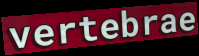
vertebrae